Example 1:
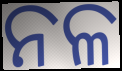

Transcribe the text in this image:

ନଳ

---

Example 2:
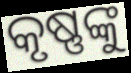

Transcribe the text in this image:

କୃଷ୍ଣଙ୍କୁ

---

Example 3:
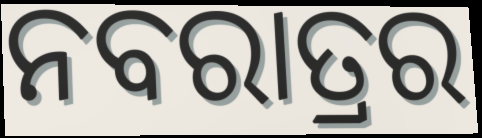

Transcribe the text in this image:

ନବରାତ୍ରର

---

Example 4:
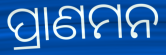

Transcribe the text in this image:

ପ୍ରାଣମନ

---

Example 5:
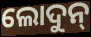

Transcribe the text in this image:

ଲୋଦୁନ୍